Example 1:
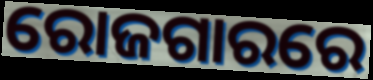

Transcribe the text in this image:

ରୋଜଗାରରେ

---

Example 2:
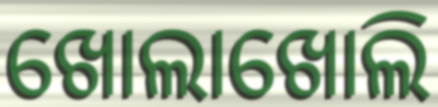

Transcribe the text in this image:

ଖୋଲାଖୋଲି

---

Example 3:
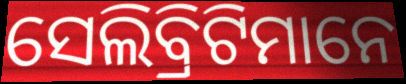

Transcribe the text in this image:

ସେଲିବ୍ରିଟିମାନେ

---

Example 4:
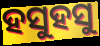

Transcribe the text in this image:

ହସୁହସୁ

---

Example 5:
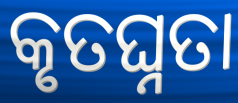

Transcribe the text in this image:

କୃତଘ୍ନତା